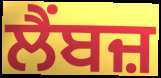
ਲੈਂਬਜ਼